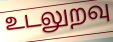
உடலுறவு